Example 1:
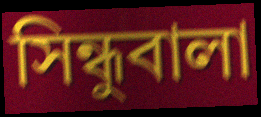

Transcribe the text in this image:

সিন্ধুবালা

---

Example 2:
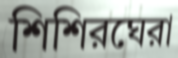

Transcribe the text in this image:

শিশিরঘেরা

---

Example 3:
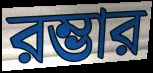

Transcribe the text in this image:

রম্ভার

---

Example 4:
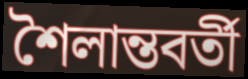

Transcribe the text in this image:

শৈলান্তবর্তী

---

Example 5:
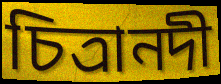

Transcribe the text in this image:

চিত্রানদী